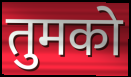
तुमको